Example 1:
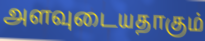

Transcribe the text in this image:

அளவுடையதாகும்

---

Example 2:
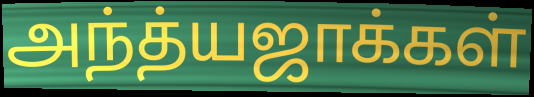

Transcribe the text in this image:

அந்த்யஜாக்கள்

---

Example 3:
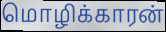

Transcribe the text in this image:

மொழிக்காரன்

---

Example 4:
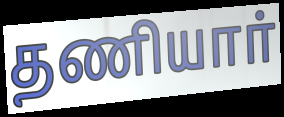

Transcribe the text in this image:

தணியார்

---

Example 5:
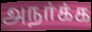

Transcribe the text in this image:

அநர்க்க